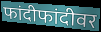
फांदीफांदीवर